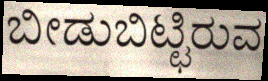
ಬೀಡುಬಿಟ್ಟಿರುವ